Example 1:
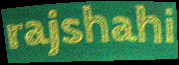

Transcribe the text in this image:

rajshahi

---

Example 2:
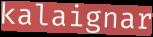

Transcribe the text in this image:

kalaignar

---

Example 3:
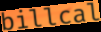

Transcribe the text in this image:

billcal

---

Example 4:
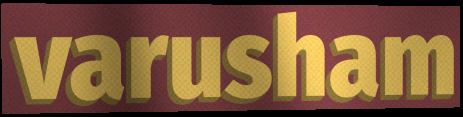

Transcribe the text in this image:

varusham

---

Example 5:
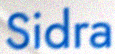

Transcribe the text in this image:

Sidra